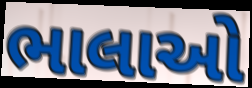
ભાલાઓ